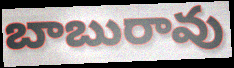
బాబురావు